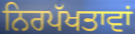
ਨਿਰਪੱਖਤਾਵਾਂ